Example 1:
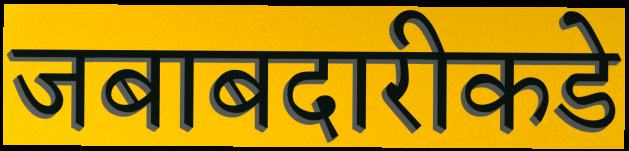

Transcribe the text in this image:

जबाबदारीकडे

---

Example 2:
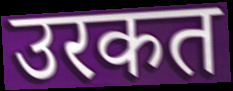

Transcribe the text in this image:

उरकत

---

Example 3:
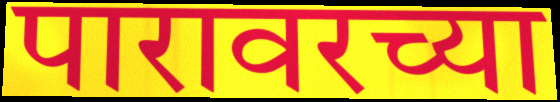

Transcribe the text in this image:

पारावरच्या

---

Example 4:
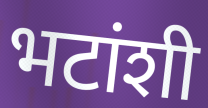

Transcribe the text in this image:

भटांशी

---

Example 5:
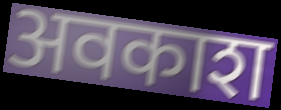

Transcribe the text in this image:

अवकाश